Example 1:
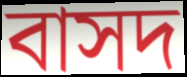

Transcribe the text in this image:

বাসদ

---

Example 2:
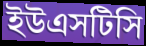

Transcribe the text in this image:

ইউএসটিসি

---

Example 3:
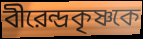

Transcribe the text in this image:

বীরেন্দ্রকৃষ্ণকে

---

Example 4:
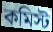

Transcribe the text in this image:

কমিস্ট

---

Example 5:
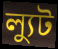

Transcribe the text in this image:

ল্যুট